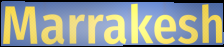
Marrakesh